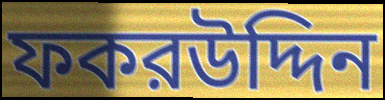
ফকরউদ্দিন